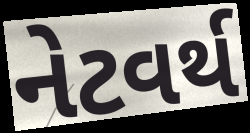
નેટવર્થ